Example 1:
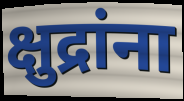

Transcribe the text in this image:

क्षुद्रांना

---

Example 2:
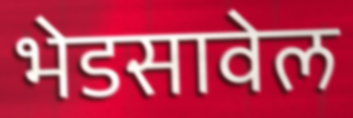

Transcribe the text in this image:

भेडसावेल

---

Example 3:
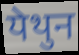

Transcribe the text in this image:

येथुन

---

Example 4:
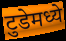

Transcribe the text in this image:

टुडेमध्ये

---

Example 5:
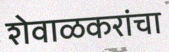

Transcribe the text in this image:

शेवाळकरांचा